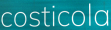
costicola